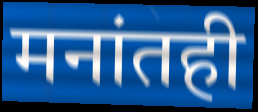
मनांतही